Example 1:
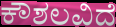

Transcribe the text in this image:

ಕೌಶಲವಿದೆ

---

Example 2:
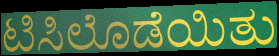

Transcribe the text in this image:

ಟಿಸಿಲೊಡೆಯಿತು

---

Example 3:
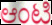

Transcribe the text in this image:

ಆಂಟಿ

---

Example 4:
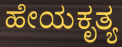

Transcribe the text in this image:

ಹೇಯಕೃತ್ಯ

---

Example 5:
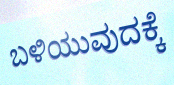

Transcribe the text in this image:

ಬಳಿಯುವುದಕ್ಕೆ